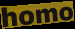
homo